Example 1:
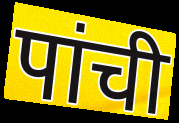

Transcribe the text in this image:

पांची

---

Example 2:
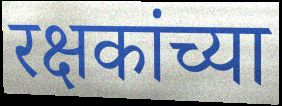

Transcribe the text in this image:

रक्षकांच्या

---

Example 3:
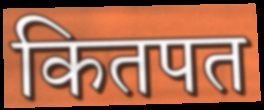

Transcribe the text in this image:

कितपत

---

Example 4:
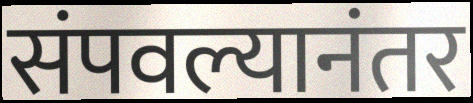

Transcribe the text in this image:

संपवल्यानंतर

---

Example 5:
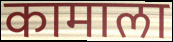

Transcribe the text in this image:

कामाला